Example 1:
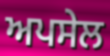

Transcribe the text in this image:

ਅਪਸੇਲ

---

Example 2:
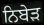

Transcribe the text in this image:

ਨਿਬੇੜ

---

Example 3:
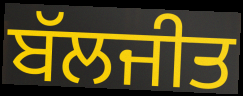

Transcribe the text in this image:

ਬੱਲਜੀਤ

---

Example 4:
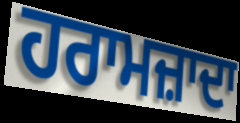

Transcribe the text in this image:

ਹਰਾਮਜ਼ਾਦਾ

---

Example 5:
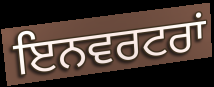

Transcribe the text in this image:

ਇਨਵਰਟਰਾਂ